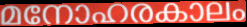
മനോഹരകാലം